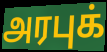
அரபுக்